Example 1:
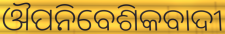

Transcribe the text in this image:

ଔପନିବେଶିକବାଦୀ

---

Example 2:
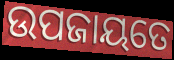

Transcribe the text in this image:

ଉପଜାୟତେ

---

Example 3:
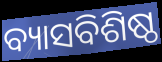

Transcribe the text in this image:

ବ୍ୟାସବିଶିଷ୍ଠ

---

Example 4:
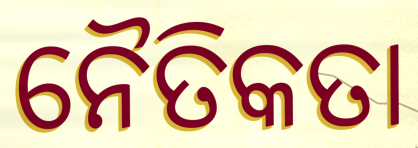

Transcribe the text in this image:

ନୈତିକତା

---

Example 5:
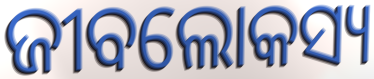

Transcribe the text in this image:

ଜୀବଲୋକସ୍ୟ